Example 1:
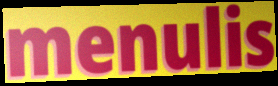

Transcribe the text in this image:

menulis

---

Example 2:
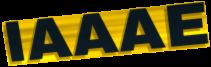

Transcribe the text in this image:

IAAAE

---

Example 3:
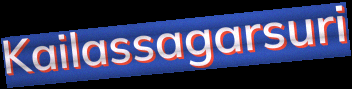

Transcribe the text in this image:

Kailassagarsuri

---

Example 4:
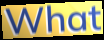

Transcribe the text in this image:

What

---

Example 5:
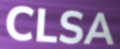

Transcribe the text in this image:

CLSA